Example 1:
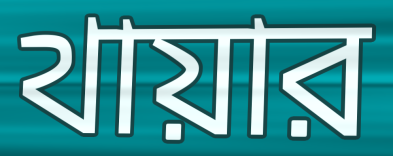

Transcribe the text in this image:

থায়ার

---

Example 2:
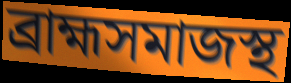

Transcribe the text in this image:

ব্রাহ্মসমাজস্থ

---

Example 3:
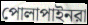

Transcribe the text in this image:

পোলাপাইনরা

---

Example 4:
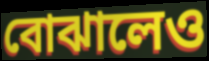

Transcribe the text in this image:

বোঝালেও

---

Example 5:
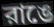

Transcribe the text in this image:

রাঙে